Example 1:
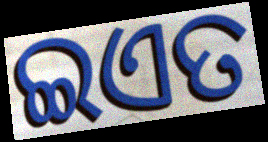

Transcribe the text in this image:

ଇଏତ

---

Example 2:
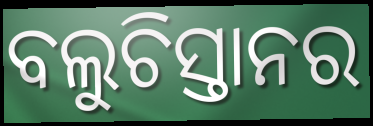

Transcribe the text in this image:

ବଲୁଚିସ୍ତାନର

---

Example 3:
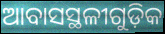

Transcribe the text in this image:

ଆବାସସ୍ଥଳୀଗୁଡ଼ିକ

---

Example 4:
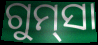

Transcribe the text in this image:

ଗୁମ୍‌ସା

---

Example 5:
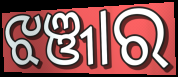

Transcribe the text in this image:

ଝଞ୍ଜାର